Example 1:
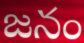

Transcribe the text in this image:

జనం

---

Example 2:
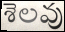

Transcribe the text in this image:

శెలవు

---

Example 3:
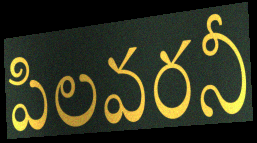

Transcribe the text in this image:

పిలవరనీ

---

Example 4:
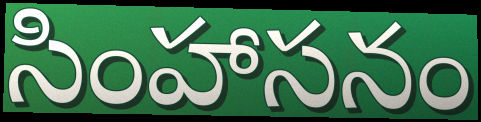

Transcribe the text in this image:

సింహాసనం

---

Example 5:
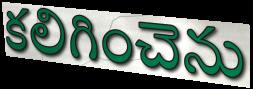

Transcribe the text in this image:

కలిగించెను